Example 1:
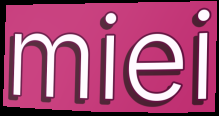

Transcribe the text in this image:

miei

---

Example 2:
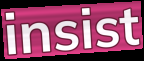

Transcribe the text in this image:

insist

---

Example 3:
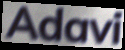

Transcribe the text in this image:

Adavi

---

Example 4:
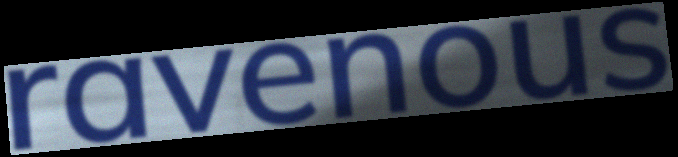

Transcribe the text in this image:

ravenous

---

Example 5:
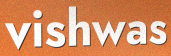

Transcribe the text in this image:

vishwas